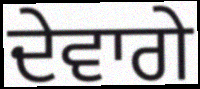
ਦੇਵਾਗੇ